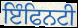
ਇੰਫਿਨਟੀ